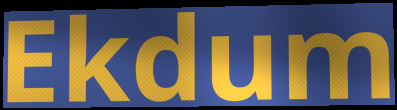
Ekdum